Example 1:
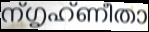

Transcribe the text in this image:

ന്ഗൃഹ്ണീതാ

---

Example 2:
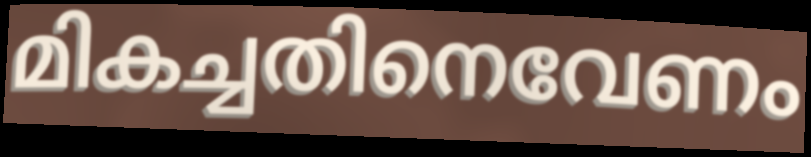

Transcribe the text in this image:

മികച്ചതിനെവേണം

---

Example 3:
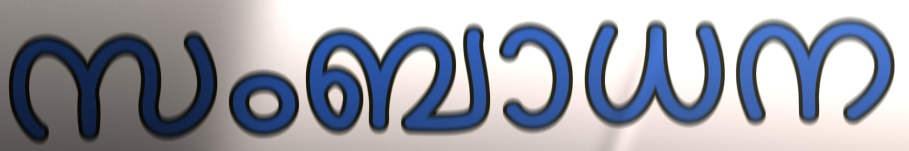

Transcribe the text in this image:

സംബാധന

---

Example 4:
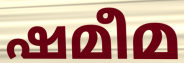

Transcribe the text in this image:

ഷമീമ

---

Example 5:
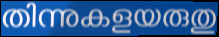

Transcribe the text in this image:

തിന്നുകളയരുതു